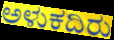
ಅಳುಕದಿರು